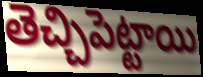
తెచ్చిపెట్టాయి